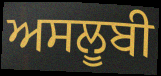
ਅਸਲੂਬੀ